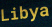
Libya